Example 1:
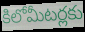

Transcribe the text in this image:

కిలోమీటర్లకు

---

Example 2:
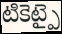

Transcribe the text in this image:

టికెట్పై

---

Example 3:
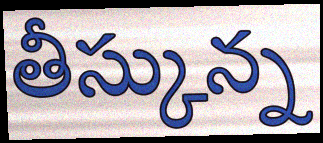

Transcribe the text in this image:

తీస్కున్న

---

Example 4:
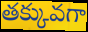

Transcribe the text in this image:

తక్కువగా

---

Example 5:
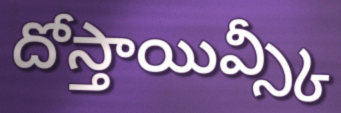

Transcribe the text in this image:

దోస్తాయివ్స్కీ